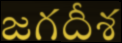
జగదీశ